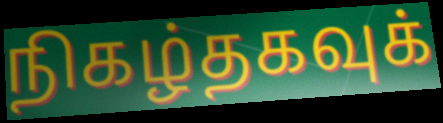
நிகழ்தகவுக்